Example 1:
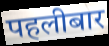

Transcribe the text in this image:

पहलीबार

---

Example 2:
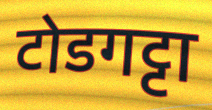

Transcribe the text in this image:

टोडगट्टा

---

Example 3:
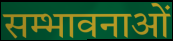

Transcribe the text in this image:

सम्भावनाओं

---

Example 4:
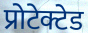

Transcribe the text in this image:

प्रोटेक्टेड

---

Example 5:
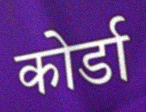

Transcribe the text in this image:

कोर्डा